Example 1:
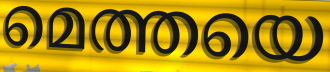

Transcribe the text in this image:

മെത്തയെ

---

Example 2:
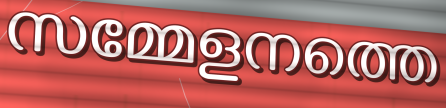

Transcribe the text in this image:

സമ്മേളനത്തെ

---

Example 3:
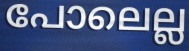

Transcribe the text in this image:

പോലെല്ല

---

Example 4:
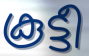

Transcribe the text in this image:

കൂട്ടീ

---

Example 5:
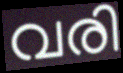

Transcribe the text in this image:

വരി